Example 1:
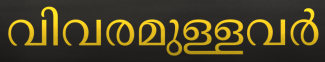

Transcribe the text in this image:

വിവരമുള്ളവർ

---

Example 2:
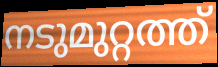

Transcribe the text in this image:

നടുമുറ്റത്ത്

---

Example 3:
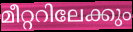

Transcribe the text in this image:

മീറ്ററിലേക്കും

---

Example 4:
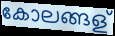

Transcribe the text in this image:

കോലങ്ങള്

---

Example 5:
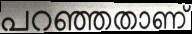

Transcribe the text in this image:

പറഞ്ഞതാണ്